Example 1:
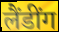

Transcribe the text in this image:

लैंडींग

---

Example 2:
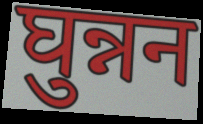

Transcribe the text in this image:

घुन्नन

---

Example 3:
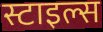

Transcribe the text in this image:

स्टाइल्स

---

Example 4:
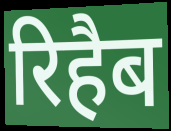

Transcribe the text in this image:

रिहैब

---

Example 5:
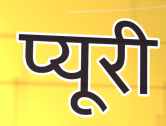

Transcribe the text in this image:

प्यूरी